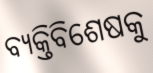
ବ୍ୟକ୍ତିବିଶେଷକୁ